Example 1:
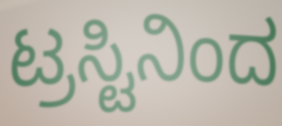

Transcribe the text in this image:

ಟ್ರಸ್ಟಿನಿಂದ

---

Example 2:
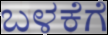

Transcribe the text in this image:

ಬಳಕೆಗೆ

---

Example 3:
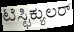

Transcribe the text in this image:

ಟೆಸ್ಟಿಕ್ಯುಲರ್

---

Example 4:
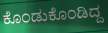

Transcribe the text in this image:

ಕೊಂಡುಕೊಂಡಿದ್ದ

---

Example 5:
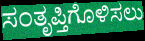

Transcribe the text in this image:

ಸಂತೃಪ್ತಿಗೊಳಿಸಲು